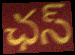
ఛస్